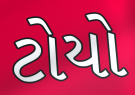
ટોયો